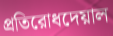
প্রতিরোধদেয়াল